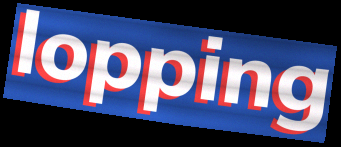
lopping